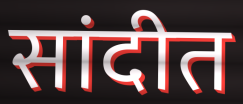
सांदीत